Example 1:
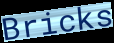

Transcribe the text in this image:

Bricks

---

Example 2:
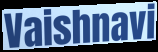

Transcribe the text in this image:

Vaishnavi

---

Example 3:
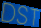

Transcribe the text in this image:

DST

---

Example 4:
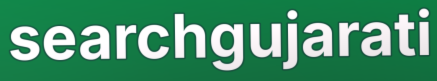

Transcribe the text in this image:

searchgujarati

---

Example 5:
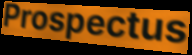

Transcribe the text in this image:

Prospectus